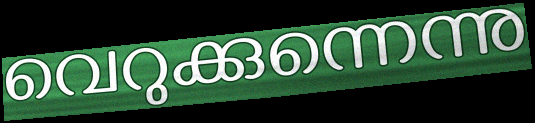
വെറുക്കുന്നെന്നു